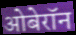
ओबेरॉन